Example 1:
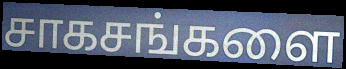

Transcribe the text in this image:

சாகசங்களை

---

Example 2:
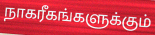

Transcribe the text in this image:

நாகரீகங்களுக்கும்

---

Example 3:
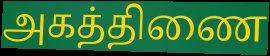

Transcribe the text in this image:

அகத்திணை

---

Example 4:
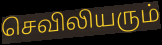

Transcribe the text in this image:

செவிலியரும்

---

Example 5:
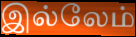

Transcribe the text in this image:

இல்லேம்